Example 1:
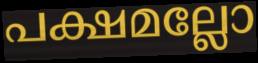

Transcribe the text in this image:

പക്ഷമല്ലോ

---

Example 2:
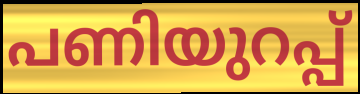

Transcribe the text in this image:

പണിയുറപ്പ്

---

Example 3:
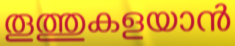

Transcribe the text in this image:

തൂത്തുകളയാൻ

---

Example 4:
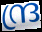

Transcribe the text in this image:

ന്ദ്ര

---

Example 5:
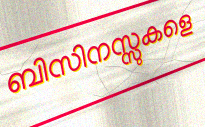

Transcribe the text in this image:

ബിസിനസ്സുകളെ